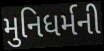
મુનિધર્મની